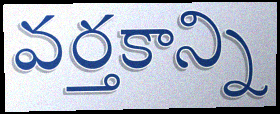
వర్తకాన్ని